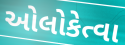
ઓલોકેત્વા